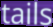
tails